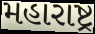
મહારાષ્ટ્ર